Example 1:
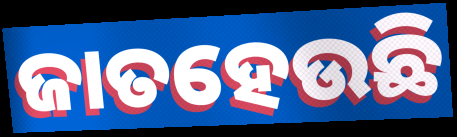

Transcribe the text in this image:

ଜାତହେଉଛି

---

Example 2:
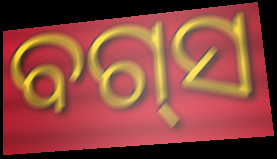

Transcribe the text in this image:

ବଗ୍‌ସ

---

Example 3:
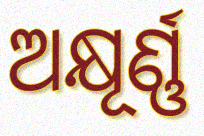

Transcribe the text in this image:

ଅକ୍ଷୂର୍ଣ୍ଣ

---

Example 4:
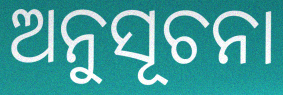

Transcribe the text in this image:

ଅନୁସୂଚନା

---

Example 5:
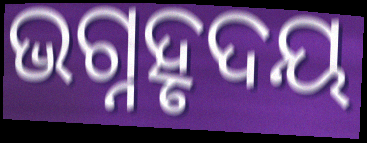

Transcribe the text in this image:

ଭଗ୍ନହୃଦୟ